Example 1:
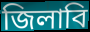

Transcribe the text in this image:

জিলাবি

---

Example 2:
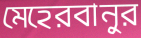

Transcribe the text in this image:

মেহেরবানুর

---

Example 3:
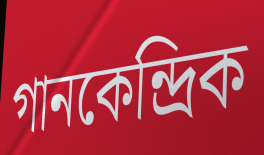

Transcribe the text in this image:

গানকেন্দ্রিক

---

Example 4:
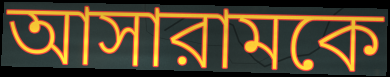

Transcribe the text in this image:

আসারামকে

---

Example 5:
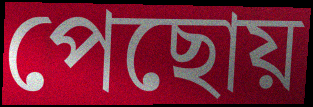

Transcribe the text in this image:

পেছোয়